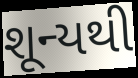
શૂન્યથી